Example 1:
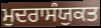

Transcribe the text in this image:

ਮੁਦਰਾਸੰਯੁਕਤ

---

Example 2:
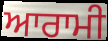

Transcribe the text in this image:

ਆਰਾਮੀ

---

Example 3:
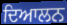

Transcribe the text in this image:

ਦਿਆਲਨ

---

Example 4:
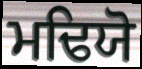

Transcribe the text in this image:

ਮਢਿਯੋ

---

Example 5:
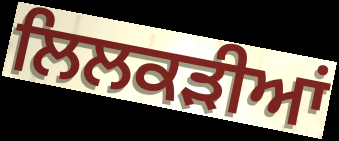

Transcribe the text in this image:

ਲਿਲਕੜੀਆਂ